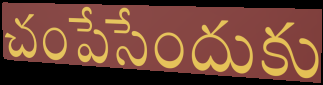
చంపేసేందుకు